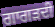
ਗਾਗੜਦੀ